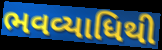
ભવવ્યાધિથી